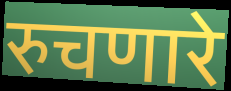
रुचणारे